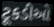
ટૂકડીઓ